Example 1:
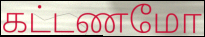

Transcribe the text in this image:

கட்டணமோ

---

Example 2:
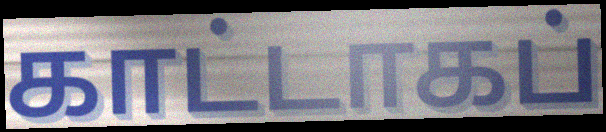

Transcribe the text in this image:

காட்டாகப்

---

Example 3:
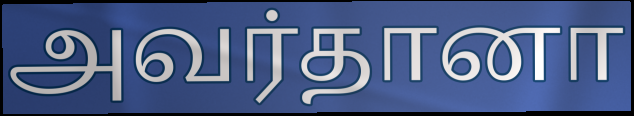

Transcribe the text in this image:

அவர்தானா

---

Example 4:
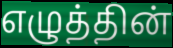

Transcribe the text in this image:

எழுத்தின்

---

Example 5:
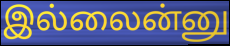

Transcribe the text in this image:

இல்லைன்னு